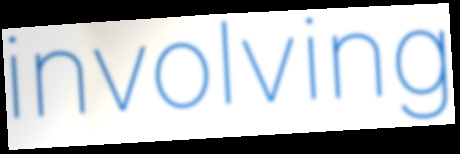
involving